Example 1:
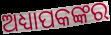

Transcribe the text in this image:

ଅଧ୍ୟାପକଙ୍କର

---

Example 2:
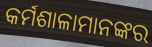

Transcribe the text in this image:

କର୍ମଶାଳାମାନଙ୍କର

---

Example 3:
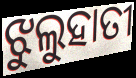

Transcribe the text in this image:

ଝୁଲୁହାତୀ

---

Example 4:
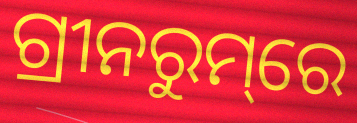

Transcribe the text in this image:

ଗ୍ରୀନରୁମ୍‌ରେ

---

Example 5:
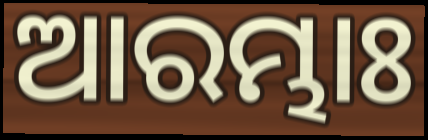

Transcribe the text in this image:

ଆରମ୍ଭାଃ